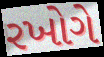
રખોગે